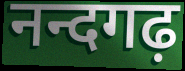
नन्दगढ़